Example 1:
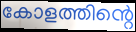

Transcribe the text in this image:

കോളത്തിന്റെ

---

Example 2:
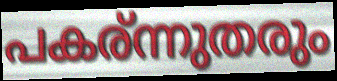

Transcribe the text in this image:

പകര്ന്നുതരും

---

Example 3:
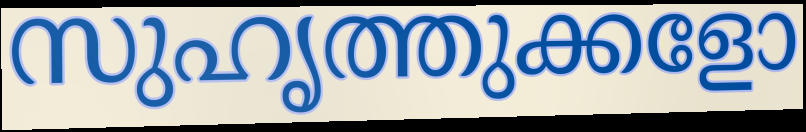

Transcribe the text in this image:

സുഹൃത്തുക്കളോ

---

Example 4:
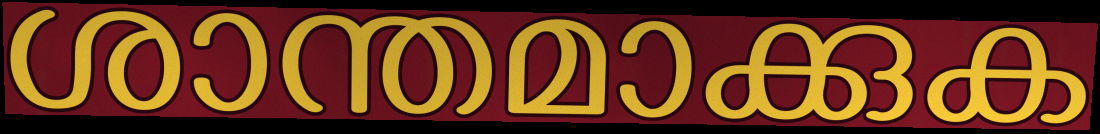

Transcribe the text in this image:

ശാന്തമാക്കുക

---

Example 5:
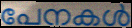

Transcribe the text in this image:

പേനകൾ